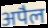
अपैल